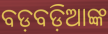
ବଡ଼ବଡ଼ିଆଙ୍କ